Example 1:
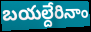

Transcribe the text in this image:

బయల్దేరినాం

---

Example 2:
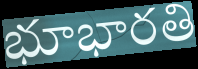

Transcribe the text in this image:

భూభారతి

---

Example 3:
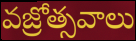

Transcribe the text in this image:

వజ్రోత్సవాలు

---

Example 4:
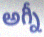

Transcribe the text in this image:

అగ్నీ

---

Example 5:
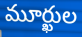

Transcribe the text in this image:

మూర్ఖుల